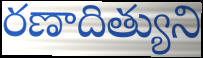
రణాదిత్యుని